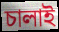
চালাই